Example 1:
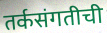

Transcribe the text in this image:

तर्कसंगतीची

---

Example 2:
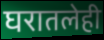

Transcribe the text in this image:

घरातलेही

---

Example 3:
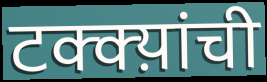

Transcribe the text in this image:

टक्क्य़ांची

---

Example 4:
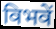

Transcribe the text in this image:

विभवें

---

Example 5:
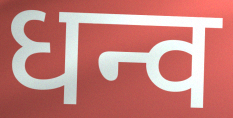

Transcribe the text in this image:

धन्व